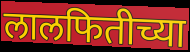
लालफितीच्या